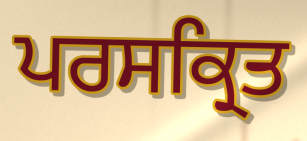
ਪਰਸਕ੍ਰਿਤ